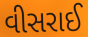
વીસરાઈ